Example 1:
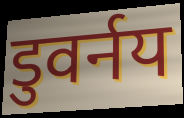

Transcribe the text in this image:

डुवर्नय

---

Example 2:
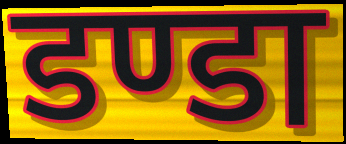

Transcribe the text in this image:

डण्डा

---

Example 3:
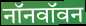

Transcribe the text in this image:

नॉनवॉवन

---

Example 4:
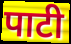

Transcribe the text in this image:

पाटी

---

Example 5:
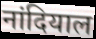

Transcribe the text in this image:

नांदियाल